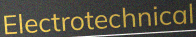
Electrotechnical